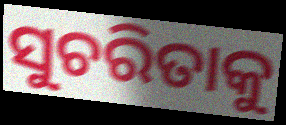
ସୁଚରିତାକୁ